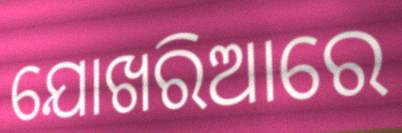
ଯୋଖରିଆରେ